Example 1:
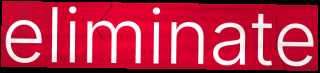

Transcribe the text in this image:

eliminate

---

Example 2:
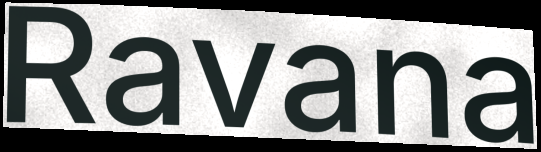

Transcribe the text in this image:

Ravana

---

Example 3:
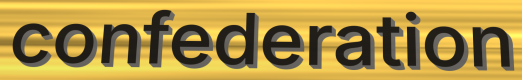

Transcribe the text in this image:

confederation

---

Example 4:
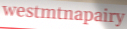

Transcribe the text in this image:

westmtnapairy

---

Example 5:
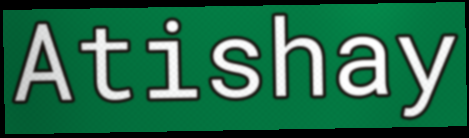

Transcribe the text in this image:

Atishay